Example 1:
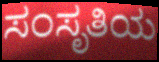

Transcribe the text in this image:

ಸಂಸೃತಿಯ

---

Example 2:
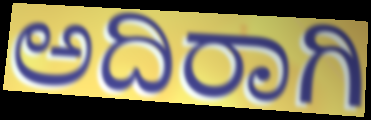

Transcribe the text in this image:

ಅದಿರಾಗಿ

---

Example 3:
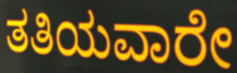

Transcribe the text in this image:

ತತಿಯವಾರೇ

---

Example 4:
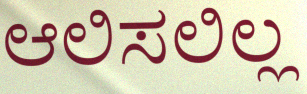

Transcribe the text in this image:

ಆಲಿಸಲಿಲ್ಲ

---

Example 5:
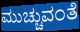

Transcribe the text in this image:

ಮುಚ್ಚುವಂತೆ